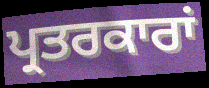
ਪ੍ਰਤਰਕਾਰਾਂ